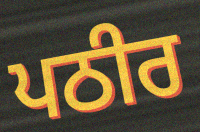
ਪਠੀਰ